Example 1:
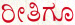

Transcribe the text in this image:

ರೀತಿಗೂ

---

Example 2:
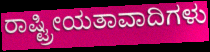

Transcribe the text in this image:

ರಾಷ್ಟ್ರೀಯತಾವಾದಿಗಳು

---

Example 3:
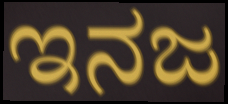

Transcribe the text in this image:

ಇನಜ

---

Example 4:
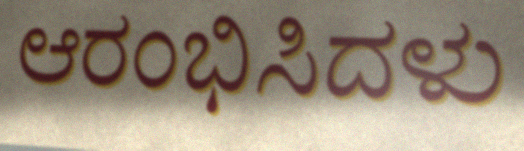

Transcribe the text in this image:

ಆರಂಭಿಸಿದಳು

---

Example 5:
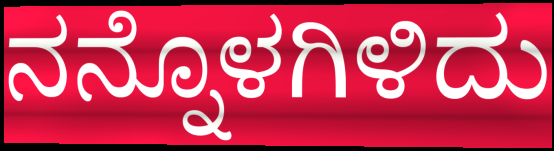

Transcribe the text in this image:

ನನ್ನೊಳಗಿಳಿದು